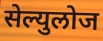
सेल्युलोज